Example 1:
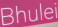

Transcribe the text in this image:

Bhulei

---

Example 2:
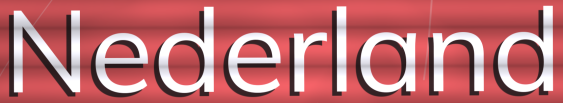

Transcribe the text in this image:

Nederland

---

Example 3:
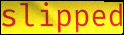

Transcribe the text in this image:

slipped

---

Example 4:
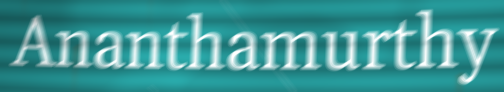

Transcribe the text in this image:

Ananthamurthy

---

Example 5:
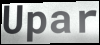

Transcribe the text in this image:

Upar